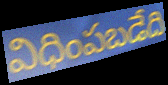
విధింపబడేది